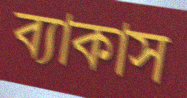
ব্যাকাস